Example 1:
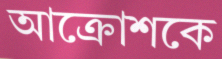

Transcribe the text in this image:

আক্রোশকে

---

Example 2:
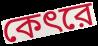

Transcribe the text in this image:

কেৎরে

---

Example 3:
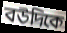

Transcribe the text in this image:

বউদিকে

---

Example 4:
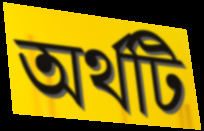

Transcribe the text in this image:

অর্থটি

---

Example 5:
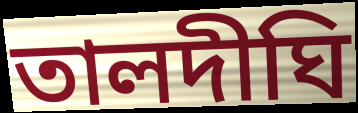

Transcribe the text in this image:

তালদীঘি